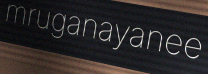
mruganayanee